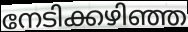
നേടിക്കഴിഞ്ഞ